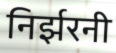
निर्झरनी